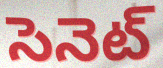
సెనెట్